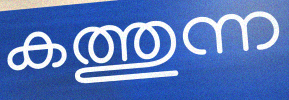
കത്തുന്ന